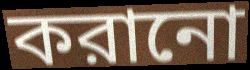
করানো